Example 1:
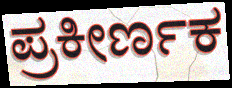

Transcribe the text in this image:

ಪ್ರಕೀರ್ಣಕ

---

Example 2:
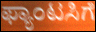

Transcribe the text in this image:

ಫ್ಯಾಂಟಸಿಗೆ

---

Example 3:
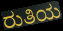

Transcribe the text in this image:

ರುತಿಯ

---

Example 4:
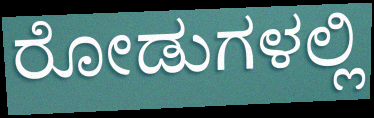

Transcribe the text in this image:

ರೋಡುಗಳಲ್ಲಿ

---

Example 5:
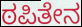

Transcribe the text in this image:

ಠಪಿತೇನ